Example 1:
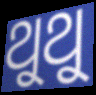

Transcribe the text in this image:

ଥୁଥୁ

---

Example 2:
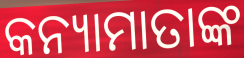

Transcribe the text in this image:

କନ୍ୟାମାତାଙ୍କ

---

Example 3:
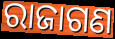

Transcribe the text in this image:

ରାଜାଗଣ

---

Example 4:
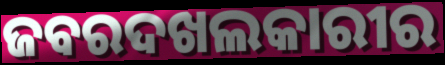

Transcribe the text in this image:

ଜବରଦଖଲକାରୀର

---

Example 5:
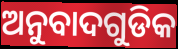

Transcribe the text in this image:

ଅନୁବାଦଗୁଡିକ